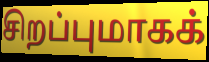
சிறப்புமாகக்